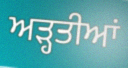
ਅੜ੍ਹਤੀਆਂ